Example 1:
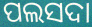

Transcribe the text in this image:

ପଲସଦା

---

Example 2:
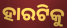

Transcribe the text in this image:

ହାରଟିକୁ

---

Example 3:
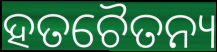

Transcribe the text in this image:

ହତଚୈତନ୍ୟ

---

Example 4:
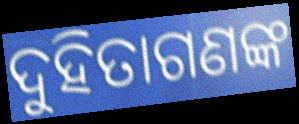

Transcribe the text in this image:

ଦୁହିତାଗଣଙ୍କ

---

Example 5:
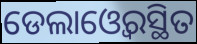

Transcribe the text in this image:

ଡେଲାଓ୍ବେରସ୍ଥିତ